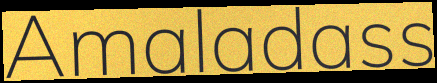
Amaladass